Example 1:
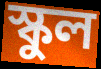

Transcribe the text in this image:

স্কুল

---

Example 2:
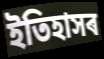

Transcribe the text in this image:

ইতিহাসৰ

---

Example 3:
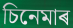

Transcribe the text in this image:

চিনেমাৰ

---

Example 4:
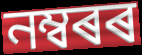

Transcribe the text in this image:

নম্বৰৰ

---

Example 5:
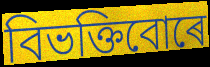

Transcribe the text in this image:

বিভক্তিবোৰে